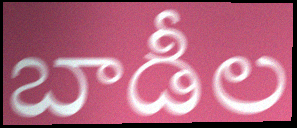
బాడీల